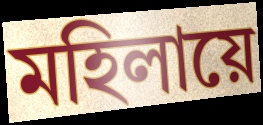
মহিলায়ে